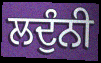
ਲਦੁੰਨੀ